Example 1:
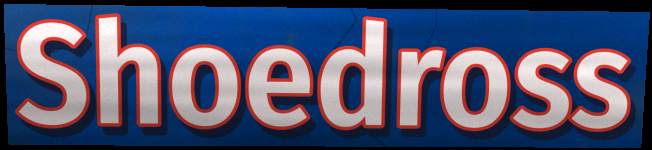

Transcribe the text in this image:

Shoedross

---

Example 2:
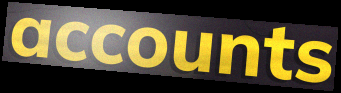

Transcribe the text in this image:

accounts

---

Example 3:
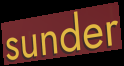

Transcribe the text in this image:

sunder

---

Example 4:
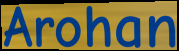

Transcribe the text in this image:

Arohan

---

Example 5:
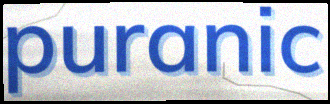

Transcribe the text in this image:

puranic